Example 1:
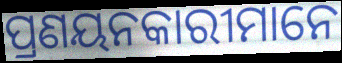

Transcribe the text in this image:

ପ୍ରଣୟନକାରୀମାନେ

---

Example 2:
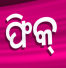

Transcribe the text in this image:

ଫିକ୍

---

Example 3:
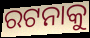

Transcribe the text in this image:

ରଟନାକୁ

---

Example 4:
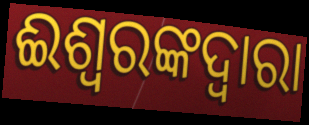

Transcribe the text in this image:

ଈଶ୍ୱରଙ୍କଦ୍ୱାରା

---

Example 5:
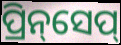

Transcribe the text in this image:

ପ୍ରିନ୍‌ସେପ୍